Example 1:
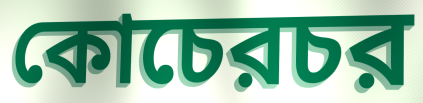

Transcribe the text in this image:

কোচেরচর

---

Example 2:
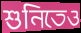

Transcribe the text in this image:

শুনিতেও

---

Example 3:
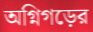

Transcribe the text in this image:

অগ্নিগড়ের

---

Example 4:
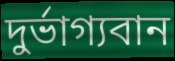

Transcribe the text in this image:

দুর্ভাগ্যবান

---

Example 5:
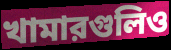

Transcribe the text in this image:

খামারগুলিও